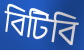
বিটিবি